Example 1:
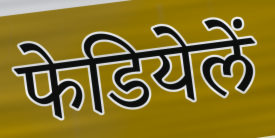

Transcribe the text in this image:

फेडियेलें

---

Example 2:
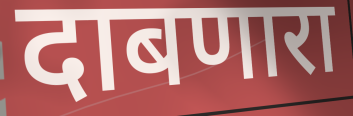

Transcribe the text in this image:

दाबणारा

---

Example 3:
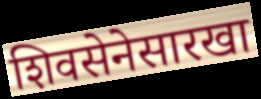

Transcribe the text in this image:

शिवसेनेसारखा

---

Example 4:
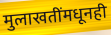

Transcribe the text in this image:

मुलाखतींमधूनही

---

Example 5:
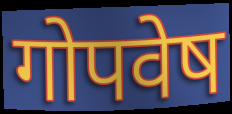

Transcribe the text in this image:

गोपवेष